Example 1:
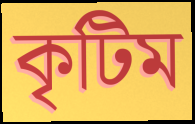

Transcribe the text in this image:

কৃটিম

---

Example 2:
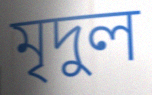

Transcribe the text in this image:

মৃদুল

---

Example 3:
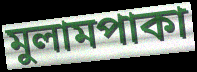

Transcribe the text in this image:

মুলামপাকা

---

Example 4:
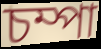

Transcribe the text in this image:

চম্পা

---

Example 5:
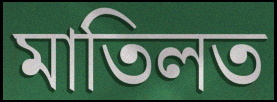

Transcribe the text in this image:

মাতিলত